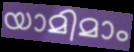
യാമിമാം